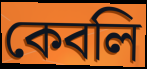
কেবলি